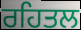
ਰਹਿਤਲ